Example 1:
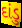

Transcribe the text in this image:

દાંડુ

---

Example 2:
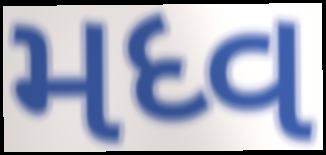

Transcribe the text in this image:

મધ્વ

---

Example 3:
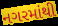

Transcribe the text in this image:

નગરમાંથી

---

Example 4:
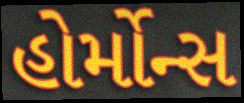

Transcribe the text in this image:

હોર્મોન્સ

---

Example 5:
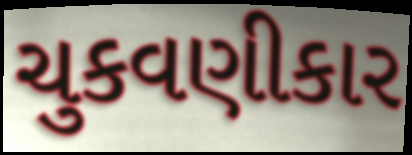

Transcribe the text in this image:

ચુકવણીકાર